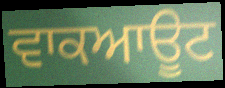
ਵਾਕਆਊਟ